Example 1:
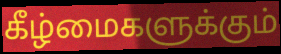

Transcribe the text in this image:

கீழ்மைகளுக்கும்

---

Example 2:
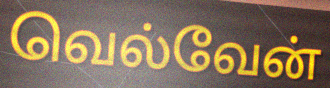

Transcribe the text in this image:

வெல்வேன்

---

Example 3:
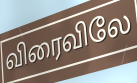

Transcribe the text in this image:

விரைவிலே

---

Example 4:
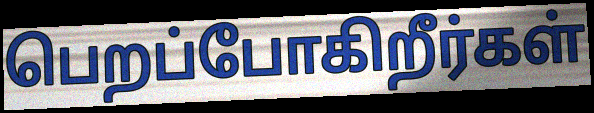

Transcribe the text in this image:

பெறப்போகிறீர்கள்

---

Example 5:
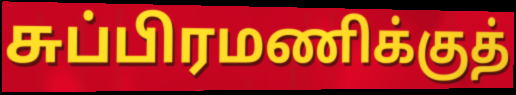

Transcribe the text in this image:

சுப்பிரமணிக்குத்